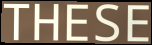
THESE